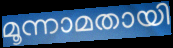
മൂന്നാമതായി